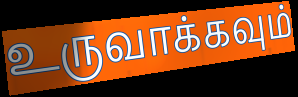
உருவாக்கவும்